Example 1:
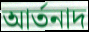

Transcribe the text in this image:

আর্তনাদ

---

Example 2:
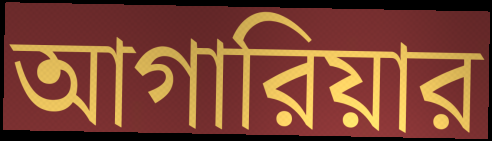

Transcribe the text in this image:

আগারিয়ার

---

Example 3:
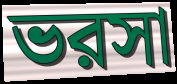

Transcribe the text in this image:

ভরসা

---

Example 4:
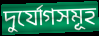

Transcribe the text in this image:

দুর্যোগসমূহ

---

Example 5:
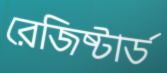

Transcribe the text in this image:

রেজিষ্টার্ড